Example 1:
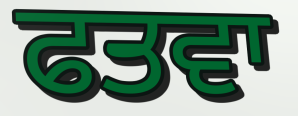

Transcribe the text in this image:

ਫਤਵਾ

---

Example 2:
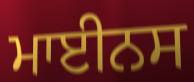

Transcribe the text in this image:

ਮਾਈਨਸ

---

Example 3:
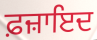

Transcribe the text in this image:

ਫ਼ਜ਼ਾਇਦ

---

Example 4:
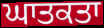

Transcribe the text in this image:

ਘਾਤਕਤਾ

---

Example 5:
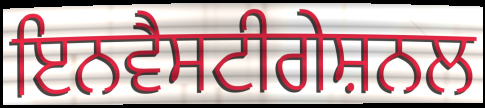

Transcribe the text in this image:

ਇਨਵੈਸਟੀਗੇਸ਼ਨਲ